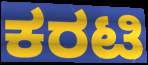
ಕರಟಿ